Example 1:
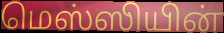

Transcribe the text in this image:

மெஸ்ஸியின்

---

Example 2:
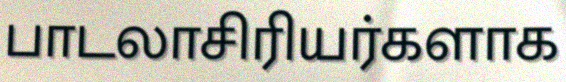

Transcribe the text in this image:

பாடலாசிரியர்களாக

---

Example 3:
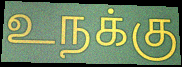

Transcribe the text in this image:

உநக்கு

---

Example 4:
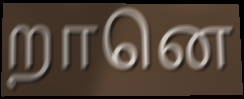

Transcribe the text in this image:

றானெ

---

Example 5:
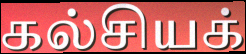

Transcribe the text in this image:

கல்சியக்